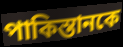
পাকিস্তানকে